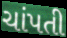
ચાંપતી